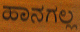
ಹಾನಗಲ್ಲ